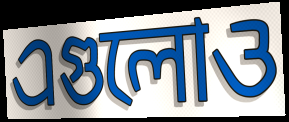
এগুলোও